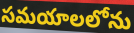
సమయాలలోను